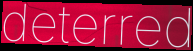
deterred